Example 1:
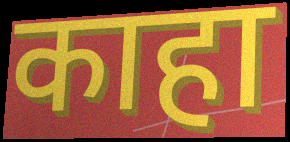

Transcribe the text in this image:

काहा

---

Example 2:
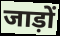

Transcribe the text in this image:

जाड़ों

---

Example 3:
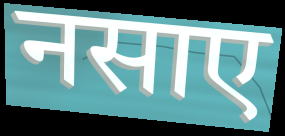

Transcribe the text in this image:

नसाए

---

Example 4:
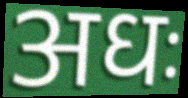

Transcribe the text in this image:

अधः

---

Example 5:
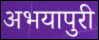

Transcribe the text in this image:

अभयापुरी